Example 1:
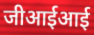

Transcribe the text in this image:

जीआईआई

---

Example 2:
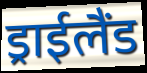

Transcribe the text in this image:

ड्राईलैंड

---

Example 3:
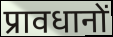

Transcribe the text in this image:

प्रावधानों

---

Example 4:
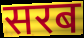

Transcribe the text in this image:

सरब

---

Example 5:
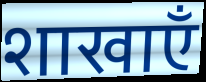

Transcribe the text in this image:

शाखाएँ